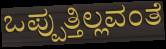
ಒಪ್ಪುತ್ತಿಲ್ಲವಂತೆ